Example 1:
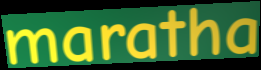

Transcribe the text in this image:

maratha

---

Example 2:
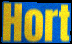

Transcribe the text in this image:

Hort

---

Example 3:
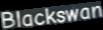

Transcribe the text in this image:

Blackswan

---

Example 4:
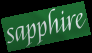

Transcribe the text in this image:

sapphire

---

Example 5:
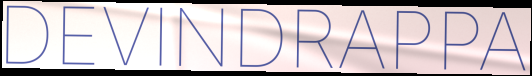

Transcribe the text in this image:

DEVINDRAPPA